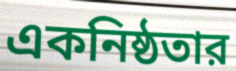
একনিষ্ঠতার